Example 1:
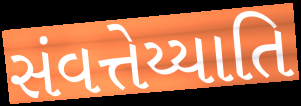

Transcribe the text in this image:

સંવત્તેય્યાતિ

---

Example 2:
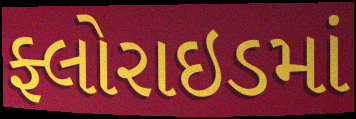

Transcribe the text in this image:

ફ્લોરાઇડમાં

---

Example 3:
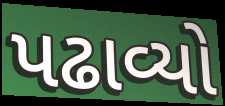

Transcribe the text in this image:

પઢાવ્યો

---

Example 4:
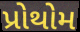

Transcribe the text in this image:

પ્રોથોમ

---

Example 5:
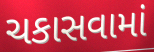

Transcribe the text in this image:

ચકાસવામાં